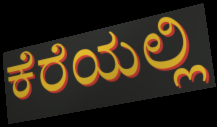
ಕೆರೆಯಲ್ಲಿ